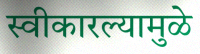
स्वीकारल्यामुळे